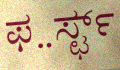
ಫ಼ರ್ಸ್ಟ್